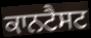
ਕਾਨਟੈਸਟ